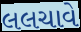
લલચાવે